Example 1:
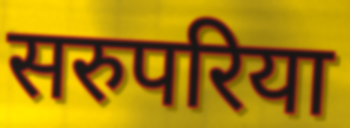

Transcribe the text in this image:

सरुपरिया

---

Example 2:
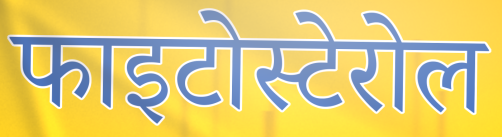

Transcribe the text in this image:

फाइटोस्टेरोल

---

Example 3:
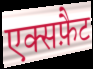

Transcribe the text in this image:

एक्सफ़ैट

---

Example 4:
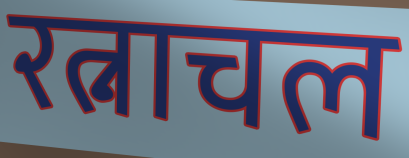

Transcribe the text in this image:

रत्नाचल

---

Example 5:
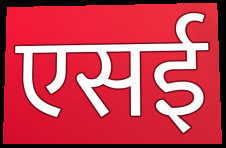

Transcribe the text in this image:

एसई